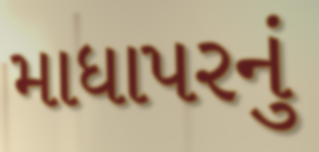
માધાપરનું